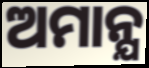
ଅମାନ୍ଯ